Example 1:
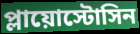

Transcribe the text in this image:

প্লায়োস্টোসিন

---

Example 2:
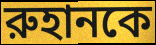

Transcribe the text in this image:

রুহানকে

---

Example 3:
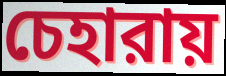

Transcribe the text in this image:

চেহারায়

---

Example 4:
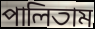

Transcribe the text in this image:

পালিতাম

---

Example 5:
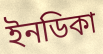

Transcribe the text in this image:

ইনডিকা